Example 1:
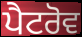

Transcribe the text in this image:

ਪੈਟਰੋਵ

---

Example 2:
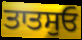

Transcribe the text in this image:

ਤਾਤਸੁਓ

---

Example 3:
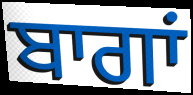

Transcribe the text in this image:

ਬਾਗਾਂ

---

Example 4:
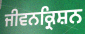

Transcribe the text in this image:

ਜੀਵਨਕ੍ਰਿਸ਼ਨ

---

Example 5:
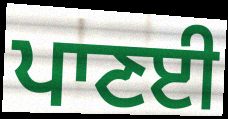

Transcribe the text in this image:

ਪਾਣਈ